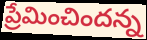
ప్రేమించిందన్న